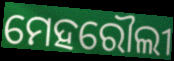
ମେହରୌଲୀ